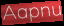
Aapnu